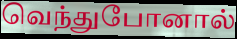
வெந்துபோனால்